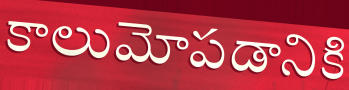
కాలుమోపడానికి